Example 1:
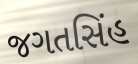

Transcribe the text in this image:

જગતસિંહ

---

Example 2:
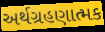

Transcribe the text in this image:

અર્થગ્રહણાત્મક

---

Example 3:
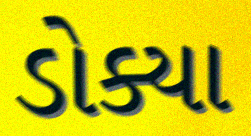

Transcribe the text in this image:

ડોક્યા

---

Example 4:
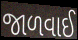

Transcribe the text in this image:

જાળવાઈ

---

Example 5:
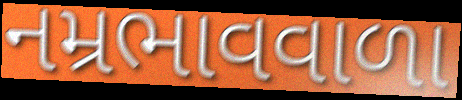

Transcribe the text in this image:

નમ્રભાવવાળા